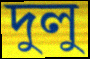
দুলু